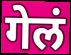
गेलं